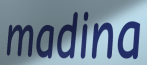
madina